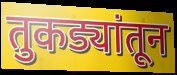
तुकड्यांतून